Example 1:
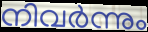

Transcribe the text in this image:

നിവർന്നും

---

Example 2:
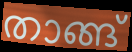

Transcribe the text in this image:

താങ്ങ്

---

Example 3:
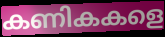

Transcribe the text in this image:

കണികകളെ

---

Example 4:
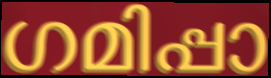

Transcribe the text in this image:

ഗമിപ്പാ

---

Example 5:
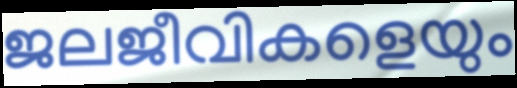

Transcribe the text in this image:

ജലജീവികളെയും